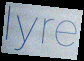
Iyre